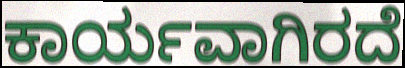
ಕಾರ್ಯವಾಗಿರದೆ